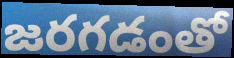
జరగడంతో